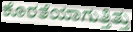
ಕೊರತೆಯಾಗುತ್ತಿತ್ತು